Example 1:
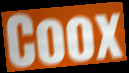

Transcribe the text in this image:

Coox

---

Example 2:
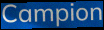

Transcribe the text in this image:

Campion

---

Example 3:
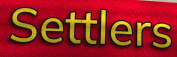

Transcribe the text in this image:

Settlers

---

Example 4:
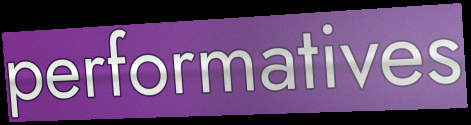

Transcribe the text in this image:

performatives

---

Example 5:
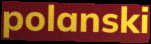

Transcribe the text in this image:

polanski